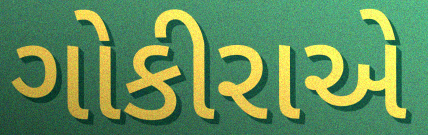
ગોકીરાએ